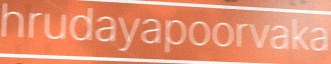
hrudayapoorvaka